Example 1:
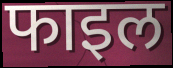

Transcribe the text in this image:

फाइल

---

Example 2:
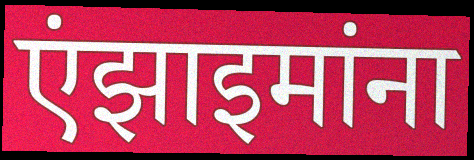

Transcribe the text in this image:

एंझाइमांना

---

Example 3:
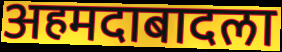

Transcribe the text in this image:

अहमदाबादला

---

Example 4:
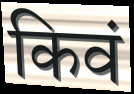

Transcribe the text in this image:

किवं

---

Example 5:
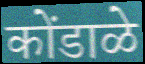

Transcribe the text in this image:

कोंडाळे